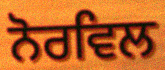
ਨੋਰਵਿਲ